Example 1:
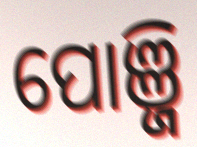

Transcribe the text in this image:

ପୋଞ୍ଜି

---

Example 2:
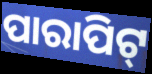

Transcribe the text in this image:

ପାରାପିଟ୍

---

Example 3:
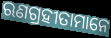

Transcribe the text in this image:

ଋଣଗ୍ରହୀତାମାନେ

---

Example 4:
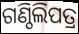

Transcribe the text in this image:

ଗଣ୍ଠିଲିପତ୍ର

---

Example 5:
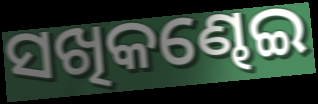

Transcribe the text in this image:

ସଖିକଣ୍ଢେଇ